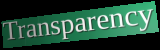
Transparency